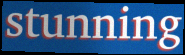
stunning